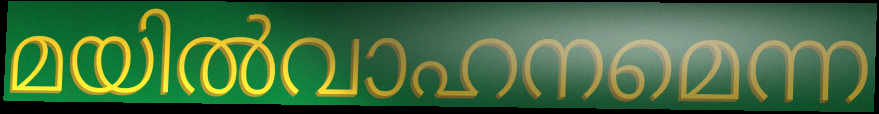
മയിൽവാഹനമെന്ന